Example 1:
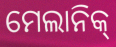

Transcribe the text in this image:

ମେଲାନିକ୍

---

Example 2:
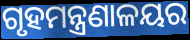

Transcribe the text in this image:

ଗୃହମନ୍ତ୍ରଣାଳୟର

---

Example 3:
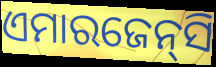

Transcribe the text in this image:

ଏମାରଜେନ୍‌ସି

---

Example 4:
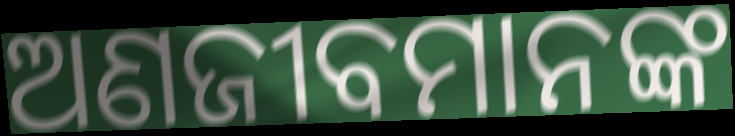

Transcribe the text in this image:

ଅଣଜୀବମାନଙ୍କ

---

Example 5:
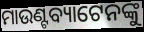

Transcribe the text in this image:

ମାଉଣ୍ଟବ୍ୟାଟେନଙ୍କୁ